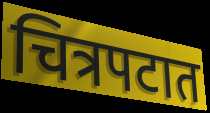
चित्रपटात